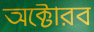
অক্টোরব